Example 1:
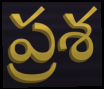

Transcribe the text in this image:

ప్రశ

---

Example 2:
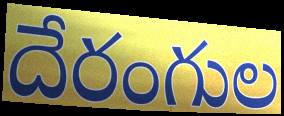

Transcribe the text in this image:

దేరంగుల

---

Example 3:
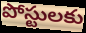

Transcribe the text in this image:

పోస్టులకు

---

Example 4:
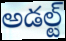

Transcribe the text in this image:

అడల్ట్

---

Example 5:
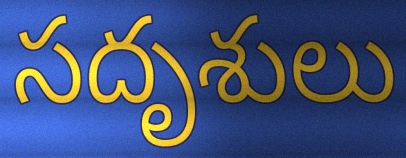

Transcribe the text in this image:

సదృశులు